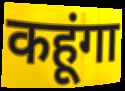
कहूंगा